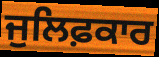
ਜੁਲਿਫ਼ਕਾਰ